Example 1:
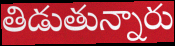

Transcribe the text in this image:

తిడుతున్నారు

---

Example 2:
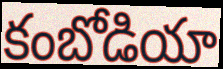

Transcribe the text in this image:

కంబోడియా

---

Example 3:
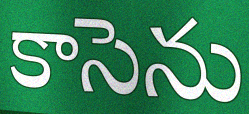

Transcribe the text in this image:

కాసెను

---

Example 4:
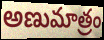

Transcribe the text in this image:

అణుమాత్రం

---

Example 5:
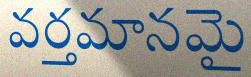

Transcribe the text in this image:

వర్తమానమై